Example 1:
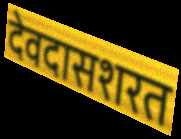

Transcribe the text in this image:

देवदासशरत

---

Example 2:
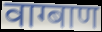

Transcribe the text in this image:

वाग्बाण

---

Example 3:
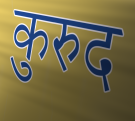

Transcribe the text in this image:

कुरुद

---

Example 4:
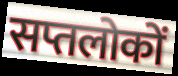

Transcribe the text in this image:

सप्तलोकों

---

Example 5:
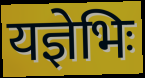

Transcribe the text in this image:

यज्ञेभिः